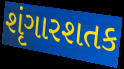
શૃંગારશતક